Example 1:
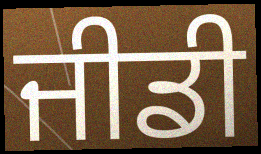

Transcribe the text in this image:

ਜੀਡੀ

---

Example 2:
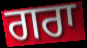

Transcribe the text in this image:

ਗਰਾ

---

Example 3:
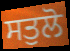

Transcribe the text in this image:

ਸਤੁਲੋ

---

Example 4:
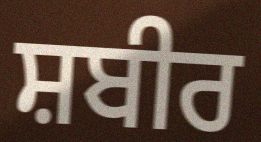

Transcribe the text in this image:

ਸ਼ਬੀਰ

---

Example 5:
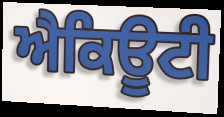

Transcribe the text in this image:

ਐਕਿਊਟੀ